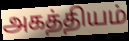
அகத்தியம்